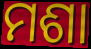
ମଶା